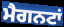
ਮੈਗਨਟਾਂ